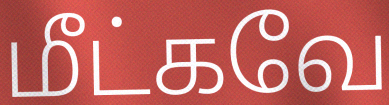
மீட்கவே